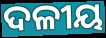
ଦଳୀୟ